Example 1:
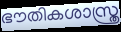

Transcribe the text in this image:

ഭൗതികശാസ്ത്ര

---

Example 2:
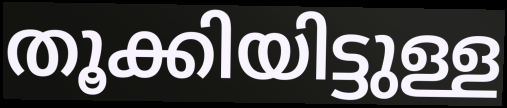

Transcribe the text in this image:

തൂക്കിയിട്ടുള്ള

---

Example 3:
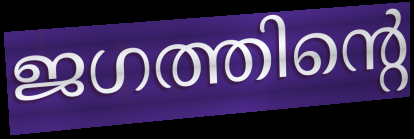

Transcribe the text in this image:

ജഗത്തിന്റെ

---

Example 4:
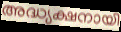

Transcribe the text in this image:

അദ്ധ്യക്ഷനായി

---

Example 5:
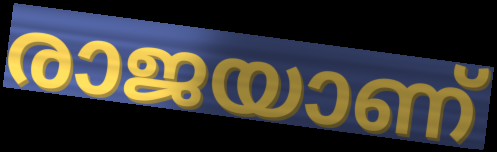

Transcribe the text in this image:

രാജയാണ്